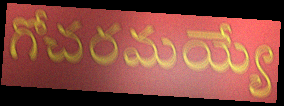
గోచరమయ్యే